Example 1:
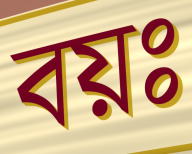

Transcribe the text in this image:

বয়ঃ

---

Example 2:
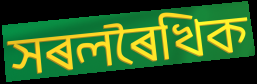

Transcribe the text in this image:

সৰলৰৈখিক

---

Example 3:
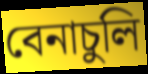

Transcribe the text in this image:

বেনাচুলি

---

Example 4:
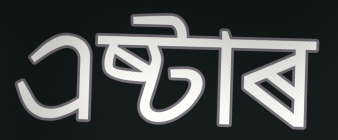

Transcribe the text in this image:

এষ্টাৰ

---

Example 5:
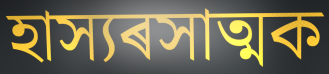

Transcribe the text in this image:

হাস্যৰসাত্মক